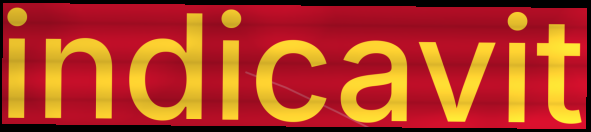
indicavit